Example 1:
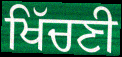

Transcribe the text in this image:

ਖਿੱਚਣੀ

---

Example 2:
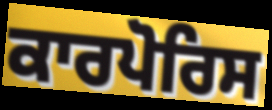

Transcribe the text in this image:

ਕਾਰਪੋਰਿਸ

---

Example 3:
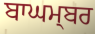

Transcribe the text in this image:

ਬਾਘਮ੍ਬਰ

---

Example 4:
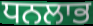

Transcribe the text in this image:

ਧਨਲਾਭ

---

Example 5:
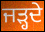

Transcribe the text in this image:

ਜੜ੍ਹਦੇ